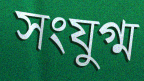
সংযুগ্ম